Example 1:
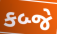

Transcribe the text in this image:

કબ્જે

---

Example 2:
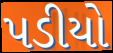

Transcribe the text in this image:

પડીયો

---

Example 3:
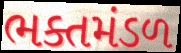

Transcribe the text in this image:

ભક્તમંડળ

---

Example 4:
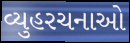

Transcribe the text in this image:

વ્યુહરચનાઓ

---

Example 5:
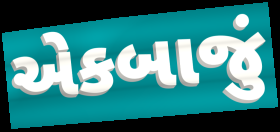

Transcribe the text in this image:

એકબાજું